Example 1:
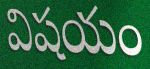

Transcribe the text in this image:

విషయం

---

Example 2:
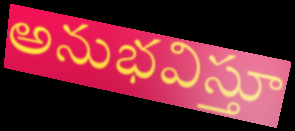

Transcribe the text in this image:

అనుభవిస్తూ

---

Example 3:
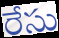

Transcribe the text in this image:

రేసు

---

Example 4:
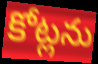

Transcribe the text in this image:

కోట్లను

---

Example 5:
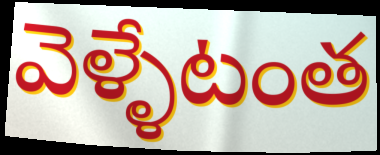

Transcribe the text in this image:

వెళ్ళేటంత